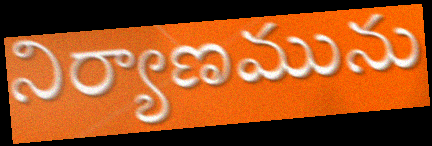
నిర్యాణమును